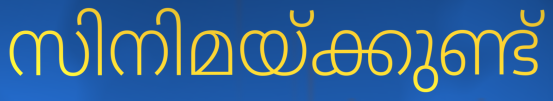
സിനിമയ്ക്കുണ്ട്